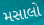
મસાલો